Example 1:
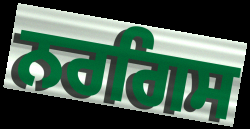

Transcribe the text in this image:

ਨਰਗਿਸ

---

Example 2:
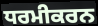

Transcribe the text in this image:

ਧਰਮੀਕਰਨ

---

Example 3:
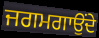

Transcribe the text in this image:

ਜਗਮਗਾਉਂਦੇ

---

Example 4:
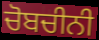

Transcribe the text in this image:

ਚੋਬਚੀਨੀ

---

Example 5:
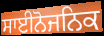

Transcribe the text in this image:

ਸਾਈਨੋਜਨਿਕ